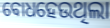
ବୋଧହେଉଥିଲା